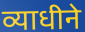
व्याधीने